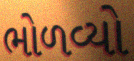
ભોળવ્યો